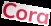
Cora